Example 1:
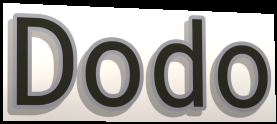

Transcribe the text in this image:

Dodo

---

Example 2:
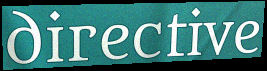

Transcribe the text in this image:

directive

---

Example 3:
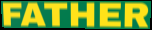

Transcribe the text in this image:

FATHER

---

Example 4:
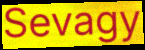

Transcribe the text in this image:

Sevagy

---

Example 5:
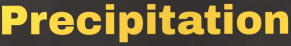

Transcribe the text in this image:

Precipitation